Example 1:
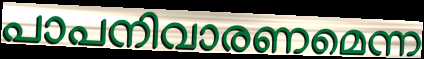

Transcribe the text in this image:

പാപനിവാരണമെന്ന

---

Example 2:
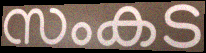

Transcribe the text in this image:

സംകട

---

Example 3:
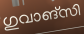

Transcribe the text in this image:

ഗുവാങ്സി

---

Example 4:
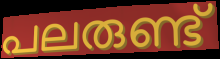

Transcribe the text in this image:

പലരുണ്ട്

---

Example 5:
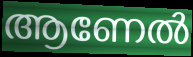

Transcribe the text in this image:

ആണേൽ